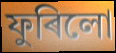
ফুৰিলো